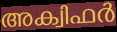
അക്വിഫർ